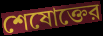
শেষোক্তের